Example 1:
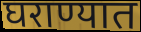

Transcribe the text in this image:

घराण्यात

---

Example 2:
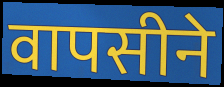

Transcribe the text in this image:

वापसीने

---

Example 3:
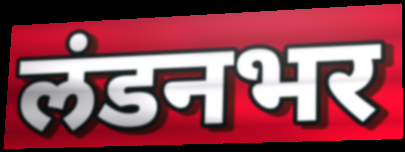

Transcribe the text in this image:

लंडनभर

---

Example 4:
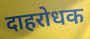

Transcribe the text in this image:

दाहरोधक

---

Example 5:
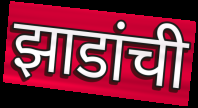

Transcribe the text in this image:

झाडांची